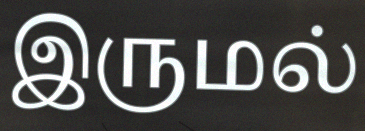
இருமல்